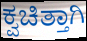
ಕ್ವಚಿತ್ತಾಗಿ